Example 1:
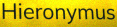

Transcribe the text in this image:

Hieronymus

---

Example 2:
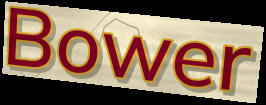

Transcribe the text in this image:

Bower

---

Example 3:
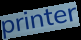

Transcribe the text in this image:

printer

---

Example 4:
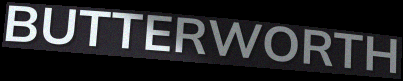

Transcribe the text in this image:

BUTTERWORTH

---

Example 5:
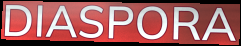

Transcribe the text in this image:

DIASPORA